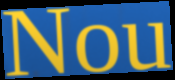
Nou